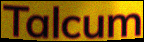
Talcum